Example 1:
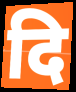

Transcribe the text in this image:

दि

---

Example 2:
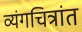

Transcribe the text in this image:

व्यंगचित्रांत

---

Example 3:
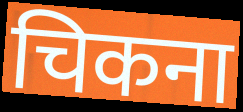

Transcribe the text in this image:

चिकना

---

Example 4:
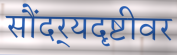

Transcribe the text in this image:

सौंदर्यदृष्टीवर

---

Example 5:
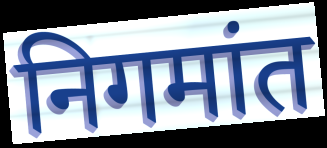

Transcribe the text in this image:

निगमांत